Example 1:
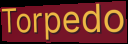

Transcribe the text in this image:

Torpedo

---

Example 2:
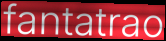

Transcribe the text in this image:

fantatrao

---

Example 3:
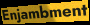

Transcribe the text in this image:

Enjambment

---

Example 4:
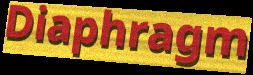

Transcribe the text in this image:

Diaphragm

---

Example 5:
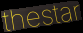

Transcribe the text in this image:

thestar